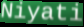
Niyati